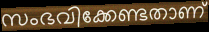
സംഭവിക്കേണ്ടതാണ്